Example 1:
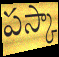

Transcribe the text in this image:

పస్కా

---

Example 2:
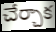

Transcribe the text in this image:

చేర్చాక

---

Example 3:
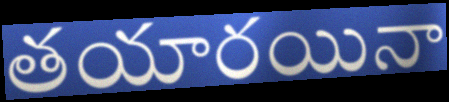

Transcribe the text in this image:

తయారయినా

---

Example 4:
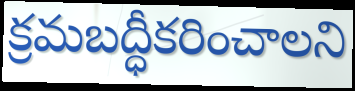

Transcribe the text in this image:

క్రమబద్ధీకరించాలని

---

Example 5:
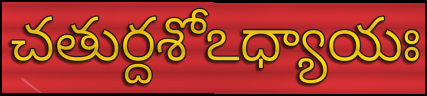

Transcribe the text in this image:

చతుర్దశోఽధ్యాయః